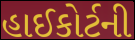
હાઈકોર્ટની